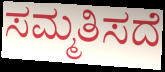
ಸಮ್ಮತಿಸದೆ